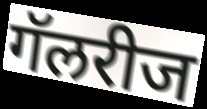
गॅलरीज